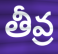
తీవ్ర